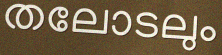
തലോടലും